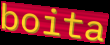
boita